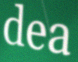
dea